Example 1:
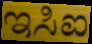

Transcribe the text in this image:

ಇಸಿಐ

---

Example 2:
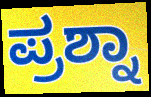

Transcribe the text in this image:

ಪ್ರಶ್ನಾ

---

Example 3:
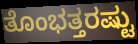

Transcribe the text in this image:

ತೊಂಭತ್ತರಷ್ಟು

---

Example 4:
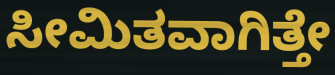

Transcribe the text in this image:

ಸೀಮಿತವಾಗಿತ್ತೇ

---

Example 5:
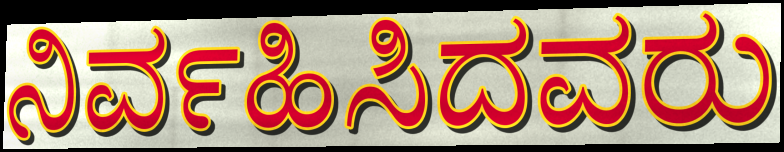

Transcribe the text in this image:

ನಿರ್ವಹಿಸಿದವರು